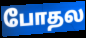
போதல